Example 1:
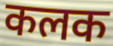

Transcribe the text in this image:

कलक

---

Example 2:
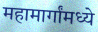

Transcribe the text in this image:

महामार्गांमध्ये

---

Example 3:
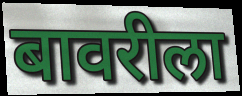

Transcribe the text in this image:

बावरीला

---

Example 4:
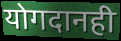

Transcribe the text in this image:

योगदानही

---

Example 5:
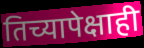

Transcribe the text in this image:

तिच्यापेक्षाही